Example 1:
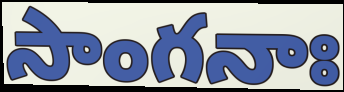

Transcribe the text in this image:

సాంగనాః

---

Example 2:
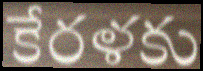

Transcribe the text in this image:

కేరళకు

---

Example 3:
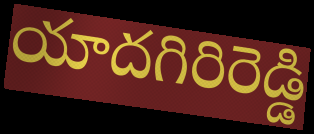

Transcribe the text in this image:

యాదగిరిరెడ్డి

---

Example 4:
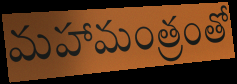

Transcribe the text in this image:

మహామంత్రంతో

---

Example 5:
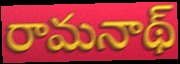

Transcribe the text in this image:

రామనాథ్